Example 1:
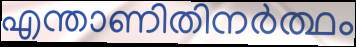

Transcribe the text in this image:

എന്താണിതിനർത്ഥം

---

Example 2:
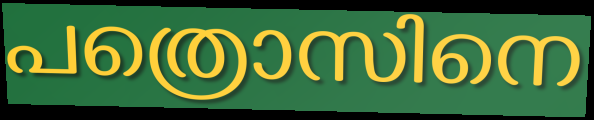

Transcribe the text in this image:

പത്രൊസിനെ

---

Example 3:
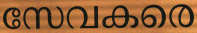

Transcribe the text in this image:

സേവകരെ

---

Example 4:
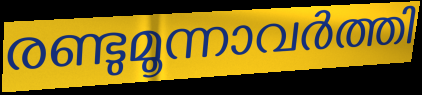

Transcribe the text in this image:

രണ്ടുമൂന്നാവർത്തി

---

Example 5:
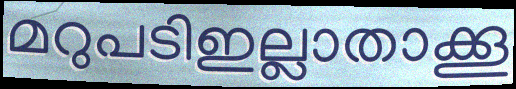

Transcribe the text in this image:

മറുപടിഇല്ലാതാക്കൂ